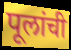
पूलांची